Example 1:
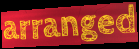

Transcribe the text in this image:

arranged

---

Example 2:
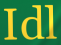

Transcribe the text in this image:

Idl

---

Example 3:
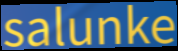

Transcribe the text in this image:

salunke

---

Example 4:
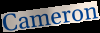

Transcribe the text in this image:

Cameron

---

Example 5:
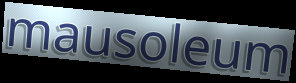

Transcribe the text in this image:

mausoleum